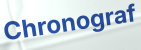
Chronograf